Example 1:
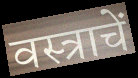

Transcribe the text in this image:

वस्त्राचें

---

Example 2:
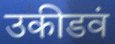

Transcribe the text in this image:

उकीडवं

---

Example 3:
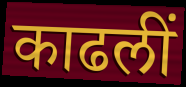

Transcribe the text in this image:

काढलीं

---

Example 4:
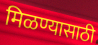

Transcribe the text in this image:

मिळण्यासाठी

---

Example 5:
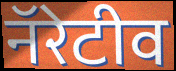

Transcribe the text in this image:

नॅरेटीव